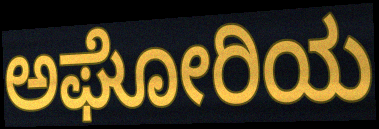
ಅಘೋರಿಯ